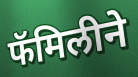
फॅमिलीने